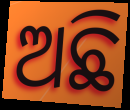
ଅଛି